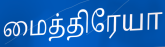
மைத்திரேயா